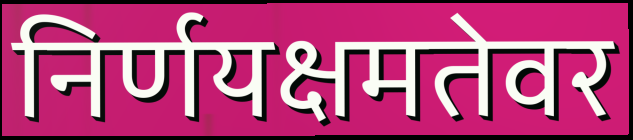
निर्णयक्षमतेवर